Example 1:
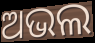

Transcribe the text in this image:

ଅଭଲ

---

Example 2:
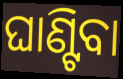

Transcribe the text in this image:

ଘାଣ୍ଟିବା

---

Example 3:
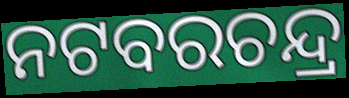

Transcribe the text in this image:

ନଟବରଚନ୍ଦ୍ର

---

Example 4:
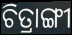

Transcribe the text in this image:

ଚିତ୍ରାଙ୍ଗୀ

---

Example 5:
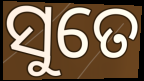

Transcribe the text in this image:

ସୁତେ